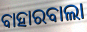
ବାହାରବାଲା